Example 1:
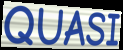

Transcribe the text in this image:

QUASI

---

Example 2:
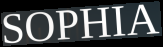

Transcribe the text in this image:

SOPHIA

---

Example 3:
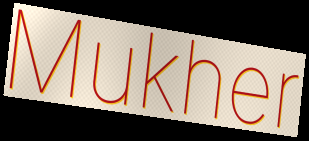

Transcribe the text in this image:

Mukher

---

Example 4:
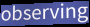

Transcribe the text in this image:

observing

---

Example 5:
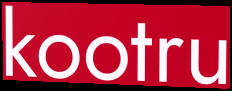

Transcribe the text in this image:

kootru